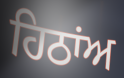
ਹਿਠਾਂਅ